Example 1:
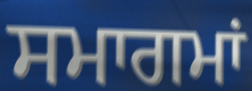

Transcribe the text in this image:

ਸਮਾਗਮਾਂ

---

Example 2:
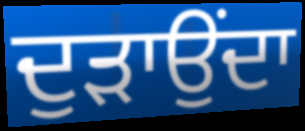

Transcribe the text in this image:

ਦੁੜਾਉਂਦਾ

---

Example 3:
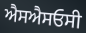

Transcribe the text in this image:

ਐਸਐਸਓਸੀ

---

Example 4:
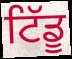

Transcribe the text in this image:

ਟਿੱਡੂ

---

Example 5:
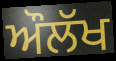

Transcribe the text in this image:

ਔਲੱਖ